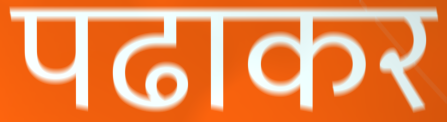
पढाकर